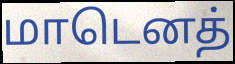
மாடெனத்